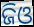
ଜିଓ